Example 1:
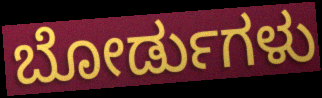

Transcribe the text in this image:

ಬೋರ್ಡುಗಳು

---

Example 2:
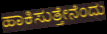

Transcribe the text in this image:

ಹಾಕಿಸುತ್ತೇನೆಂದು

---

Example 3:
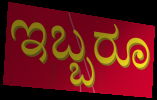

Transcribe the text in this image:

ಇಬ್ಬರೂ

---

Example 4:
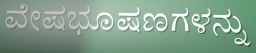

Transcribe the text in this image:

ವೇಷಭೂಷಣಗಳನ್ನು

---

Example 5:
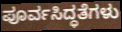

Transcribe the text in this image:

ಪೂರ್ವಸಿದ್ಧತೆಗಳು